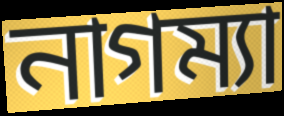
নাগম্যা